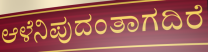
ಆಳೆನಿಪುದಂತಾಗದಿರೆ